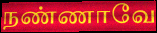
நண்ணாவே